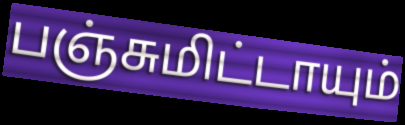
பஞ்சுமிட்டாயும்